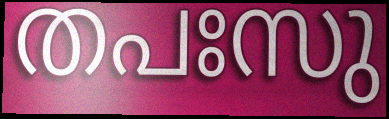
തപഃസു